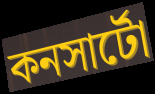
কনসার্টো